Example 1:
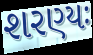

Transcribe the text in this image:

શરણ્યઃ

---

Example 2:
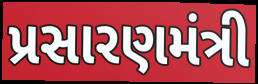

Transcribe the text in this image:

પ્રસારણમંત્રી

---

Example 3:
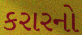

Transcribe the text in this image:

કરારનો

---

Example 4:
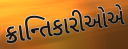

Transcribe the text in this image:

ક્રાન્તિકારીઓએ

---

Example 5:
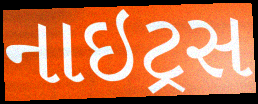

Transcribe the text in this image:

નાઇટ્રસ